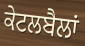
ਕੇਟਲਬੈਲਾਂ